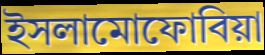
ইসলামোফোবিয়া